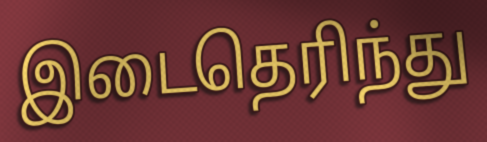
இடைதெரிந்து